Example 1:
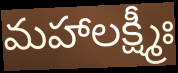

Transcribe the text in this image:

మహాలక్ష్మీః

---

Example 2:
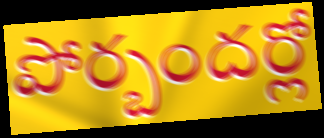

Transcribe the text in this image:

పోర్బందర్లో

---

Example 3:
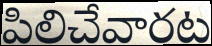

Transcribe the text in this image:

పిలిచేవారట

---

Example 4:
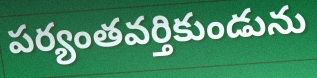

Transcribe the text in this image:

పర్యంతవర్తికుండును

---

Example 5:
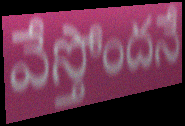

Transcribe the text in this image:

వేస్తోందనే